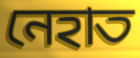
নেহাত